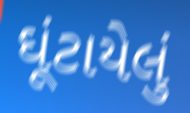
ઘૂંટાયેલું